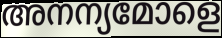
അനന്യമോളെ